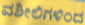
ವಶೀಲಿಗಳಿಂದ